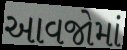
આવજોમાં